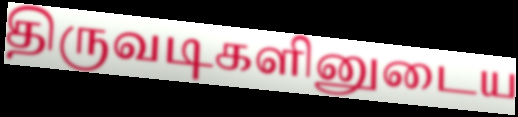
திருவடிகளினுடைய